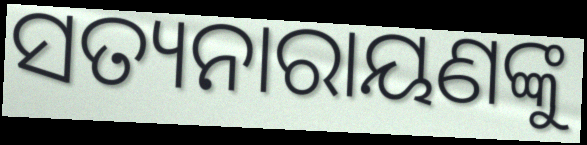
ସତ୍ୟନାରାୟଣଙ୍କୁ